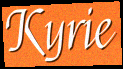
Kyrie